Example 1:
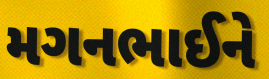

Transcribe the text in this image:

મગનભાઈને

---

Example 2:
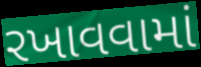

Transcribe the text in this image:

રખાવવામાં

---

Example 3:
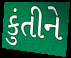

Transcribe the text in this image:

કુંતીને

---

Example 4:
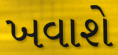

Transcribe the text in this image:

ખવાશે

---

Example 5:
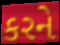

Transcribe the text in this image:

કરને